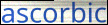
ascorbic